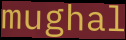
mughal